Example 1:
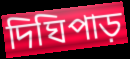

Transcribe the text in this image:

দিঘিপাড়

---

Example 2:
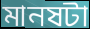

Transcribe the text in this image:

মানষটা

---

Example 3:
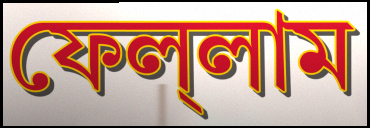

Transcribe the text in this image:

ফেল্‌লাম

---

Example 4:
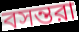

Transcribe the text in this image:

বসন্তরা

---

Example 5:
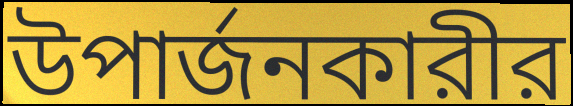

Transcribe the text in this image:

উপার্জনকারীর